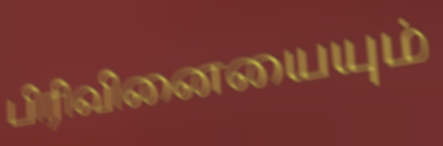
பிரிவினையையும்